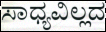
ಸಾಧ್ಯವಿಲ್ಲದ